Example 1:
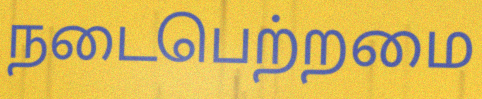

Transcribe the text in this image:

நடைபெற்றமை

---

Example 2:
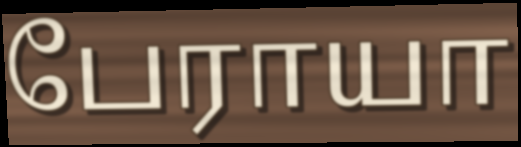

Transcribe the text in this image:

பேராயா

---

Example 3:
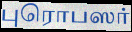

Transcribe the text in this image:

புரொபஸர்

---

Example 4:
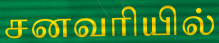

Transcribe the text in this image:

சனவரியில்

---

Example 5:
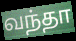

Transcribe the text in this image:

வந்தா